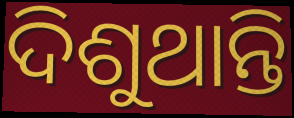
ଦିଶୁଥାନ୍ତି